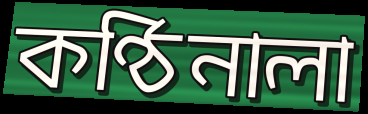
কণ্ঠিনালা